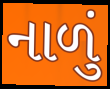
નાળું